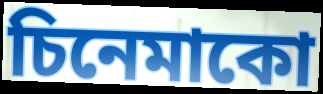
চিনেমাকো